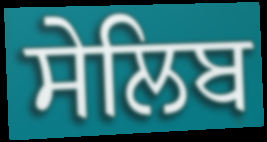
ਸੇਲਿਬ